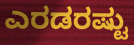
ಎರಡರಷ್ಟು